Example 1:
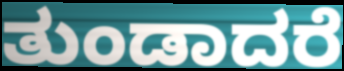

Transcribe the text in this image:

ತುಂಡಾದರೆ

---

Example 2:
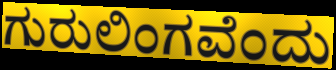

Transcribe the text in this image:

ಗುರುಲಿಂಗವೆಂದು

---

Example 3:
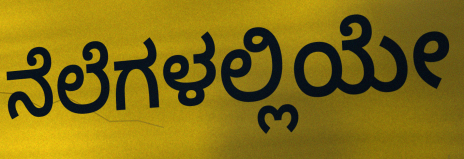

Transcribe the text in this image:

ನೆಲೆಗಳಲ್ಲಿಯೇ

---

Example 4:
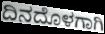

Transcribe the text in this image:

ದಿನದೊಳಗಾಗಿ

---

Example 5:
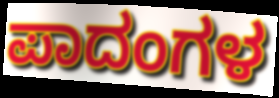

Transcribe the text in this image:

ಪಾದಂಗಳ